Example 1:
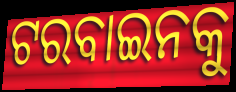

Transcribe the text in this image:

ଟରବାଇନକୁ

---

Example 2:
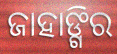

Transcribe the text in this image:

ଜାହାଙ୍ଗିର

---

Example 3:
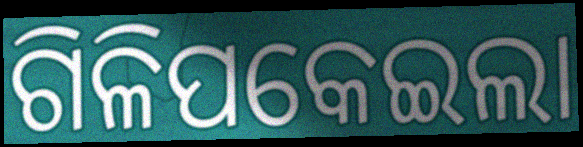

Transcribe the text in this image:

ଗିଳିପକେଇଲା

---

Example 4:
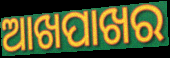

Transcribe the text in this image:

ଆଖପାଖର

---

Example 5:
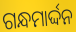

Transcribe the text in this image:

ଗନ୍ଧମାର୍ଦ୍ଦନ